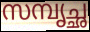
സമ്പൃച്ഛ